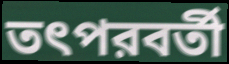
তৎপরবর্তী